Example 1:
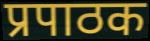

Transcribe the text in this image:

प्रपाठक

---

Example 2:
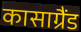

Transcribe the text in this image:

कासाग्रैंड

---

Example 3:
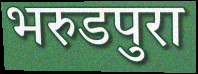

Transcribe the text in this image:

भरुडपुरा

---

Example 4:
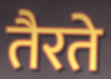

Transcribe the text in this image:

तैरते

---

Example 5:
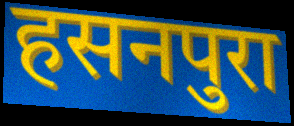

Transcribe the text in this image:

हसनपुरा